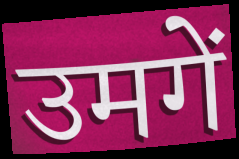
उमगें